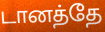
டானத்தே